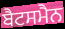
ਬੈਟਸਮੈਨ